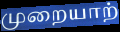
முறையாற்